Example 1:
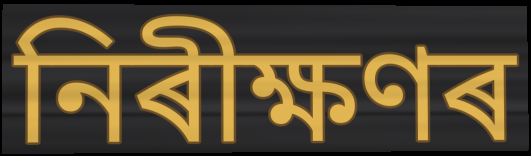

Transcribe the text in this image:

নিৰীক্ষণৰ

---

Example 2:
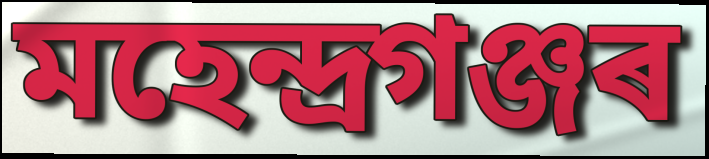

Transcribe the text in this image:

মহেন্দ্ৰগঞ্জৰ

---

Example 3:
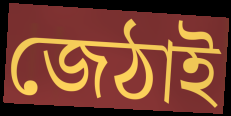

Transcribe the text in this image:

জেঠাই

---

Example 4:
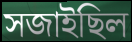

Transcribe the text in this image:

সজাইছিল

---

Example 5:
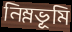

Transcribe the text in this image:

নিম্নভূমি